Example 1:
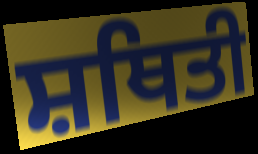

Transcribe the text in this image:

ਸ਼ਥਿਤੀ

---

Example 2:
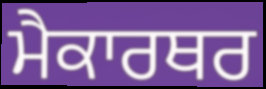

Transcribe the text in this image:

ਮੈਕਾਰਥਰ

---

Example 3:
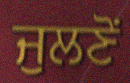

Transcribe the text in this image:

ਜੁਲਣੋਂ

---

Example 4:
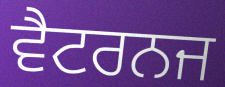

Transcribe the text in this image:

ਵੈਟਰਨਜ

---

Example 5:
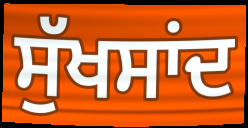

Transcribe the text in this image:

ਸੁੱਖਸਾਂਦ